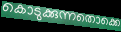
കൊടുക്കുന്നതൊക്കെ